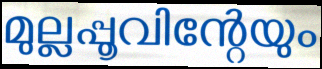
മുല്ലപ്പൂവിന്റേയും